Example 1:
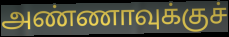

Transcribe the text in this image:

அண்ணாவுக்குச்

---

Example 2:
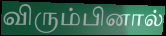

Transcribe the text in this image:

விரும்பினால்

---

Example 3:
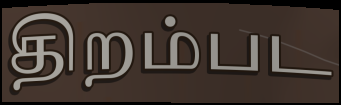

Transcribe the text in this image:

திறம்பட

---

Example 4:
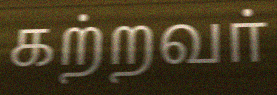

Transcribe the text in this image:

கற்றவர்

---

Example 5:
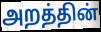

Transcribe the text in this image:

அறத்தின்